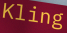
Kling